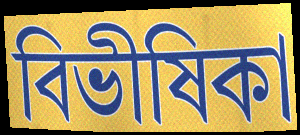
বিভীষিকা